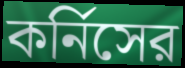
কর্নিসের